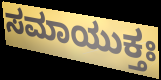
ಸಮಾಯುಕ್ತಃ